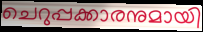
ചെറുപ്പക്കാരനുമായി